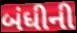
બંધીની